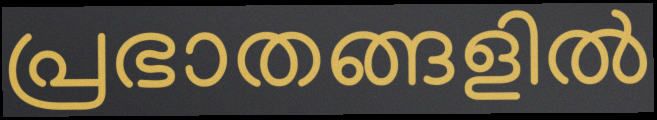
പ്രഭാതങ്ങളിൽ